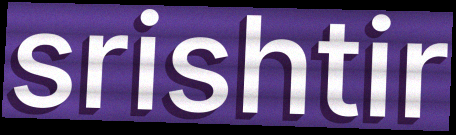
srishtir